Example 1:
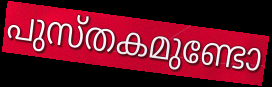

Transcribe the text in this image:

പുസ്തകമുണ്ടോ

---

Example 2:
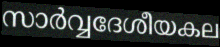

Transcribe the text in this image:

സാർവ്വദേശീയകല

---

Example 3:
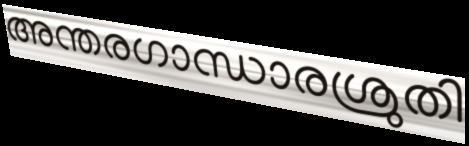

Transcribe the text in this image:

അന്തരഗാന്ധാരശ്രുതി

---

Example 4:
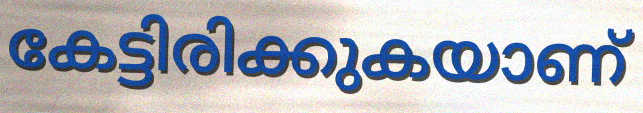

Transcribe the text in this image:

കേട്ടിരിക്കുകയാണ്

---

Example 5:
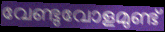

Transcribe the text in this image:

വേണ്ടുവോളമുണ്ട്